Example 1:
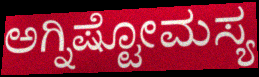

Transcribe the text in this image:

ಅಗ್ನಿಷ್ಟೋಮಸ್ಯ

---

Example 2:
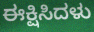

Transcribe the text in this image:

ಈಕ್ಷಿಸಿದಳು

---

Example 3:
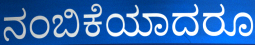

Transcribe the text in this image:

ನಂಬಿಕೆಯಾದರೂ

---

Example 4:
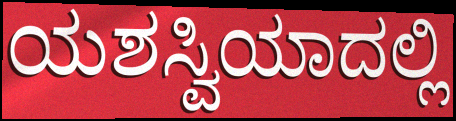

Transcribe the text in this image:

ಯಶಸ್ವಿಯಾದಲ್ಲಿ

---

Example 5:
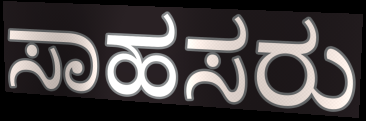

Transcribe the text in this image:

ಸಾಹಸರು